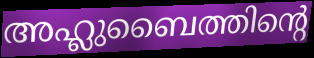
അഹ്ലുബൈത്തിന്റെ